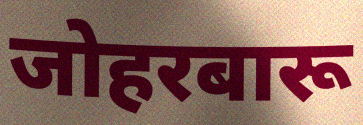
जोहरबारू